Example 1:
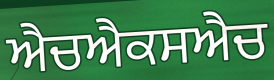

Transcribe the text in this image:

ਐਚਐਕਸਐਚ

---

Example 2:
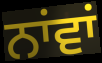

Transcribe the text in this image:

ਨਾਂਵਾਂ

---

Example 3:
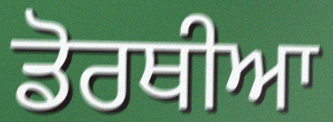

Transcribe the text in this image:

ਡੋਰਥੀਆ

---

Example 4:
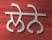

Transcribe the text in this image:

ਲੇਨੇ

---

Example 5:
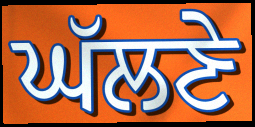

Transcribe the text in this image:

ਘੱਲਣੇ